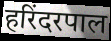
हरिंदरपाल